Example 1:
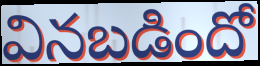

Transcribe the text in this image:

వినబడిందో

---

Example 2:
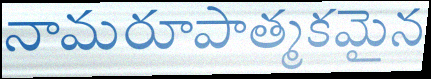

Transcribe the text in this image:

నామరూపాత్మకమైన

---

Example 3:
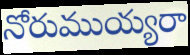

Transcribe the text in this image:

నోరుముయ్యరా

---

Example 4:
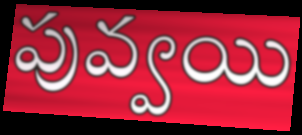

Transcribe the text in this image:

పువ్వయి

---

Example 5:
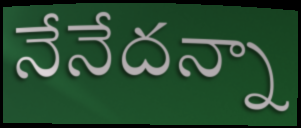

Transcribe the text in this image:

నేనేదన్నా